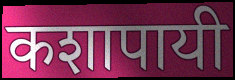
कशापायी